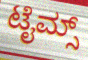
ಟೈಮ್ಸ್